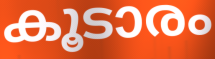
കൂടാരം